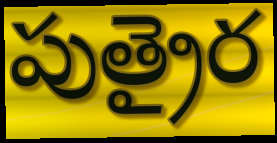
పుత్రైర